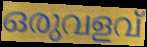
ഒരുവളവ്